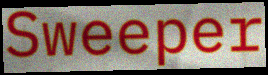
Sweeper